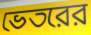
ভেতরের